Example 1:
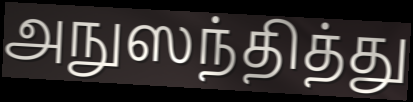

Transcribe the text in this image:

அநுஸந்தித்து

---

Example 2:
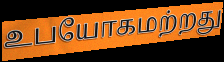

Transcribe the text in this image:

உபயோகமற்றது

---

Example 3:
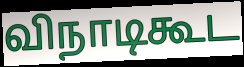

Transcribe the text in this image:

விநாடிகூட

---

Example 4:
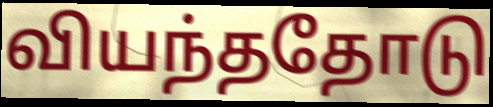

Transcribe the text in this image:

வியந்ததோடு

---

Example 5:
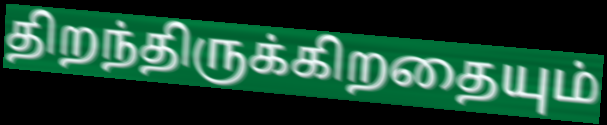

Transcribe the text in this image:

திறந்திருக்கிறதையும்